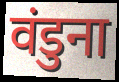
वंडुना